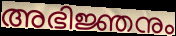
അഭിജ്ഞനും